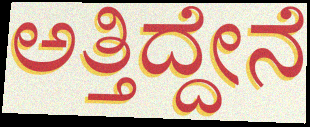
ಅತ್ತಿದ್ದೇನೆ